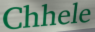
Chhele